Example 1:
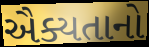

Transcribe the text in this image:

ઐક્યતાનો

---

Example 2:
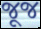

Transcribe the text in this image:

જૂજ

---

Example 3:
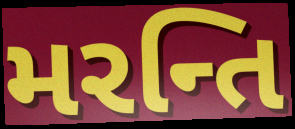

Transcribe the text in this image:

મરન્તિ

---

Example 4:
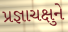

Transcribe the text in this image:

પ્રજ્ઞાચક્ષુને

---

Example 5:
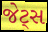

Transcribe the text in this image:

જેટ્સ